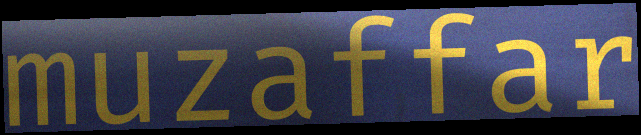
muzaffar